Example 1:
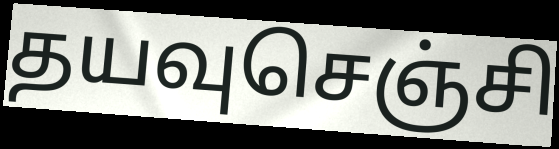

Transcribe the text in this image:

தயவுசெஞ்சி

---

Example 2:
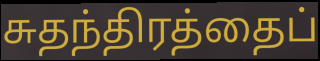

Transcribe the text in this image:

சுதந்திரத்தைப்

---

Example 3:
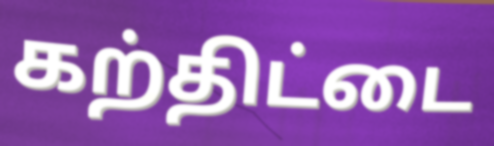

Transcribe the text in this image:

கற்திட்டை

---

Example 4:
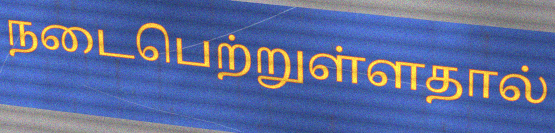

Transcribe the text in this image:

நடைபெற்றுள்ளதால்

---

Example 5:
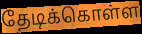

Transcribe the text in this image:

தேடிக்கொள்ள